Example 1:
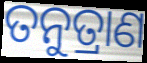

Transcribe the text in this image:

ତନୁତ୍ରାଣ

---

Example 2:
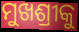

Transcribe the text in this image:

ମୁଖଶ୍ରୀକୁ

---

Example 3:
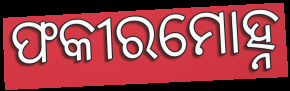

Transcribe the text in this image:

ଫକୀରମୋହ୍ନ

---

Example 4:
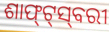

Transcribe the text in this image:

ଶାଫ୍‍ଟ୍‍ସ୍‍ବରୀ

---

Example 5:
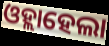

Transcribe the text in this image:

ଓହ୍ଲାହେଲା